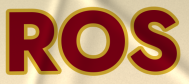
ROS